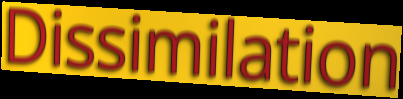
Dissimilation